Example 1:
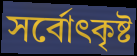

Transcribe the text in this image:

সর্বোৎকৃষ্ট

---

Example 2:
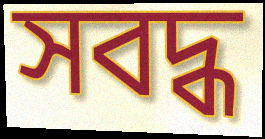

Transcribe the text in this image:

সবদ্ধ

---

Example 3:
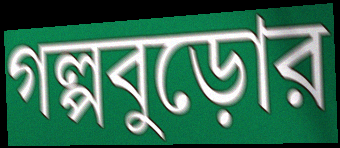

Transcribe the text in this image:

গল্পবুড়োর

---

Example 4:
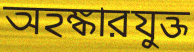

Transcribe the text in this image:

অহঙ্কারযুক্ত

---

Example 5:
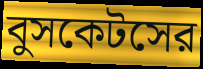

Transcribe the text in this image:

বুসকেটসের